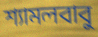
শ্যামলবাবু